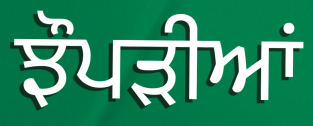
ਝੌਪੜੀਆਂ